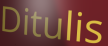
Ditulis